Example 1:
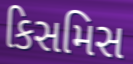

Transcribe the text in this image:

કિસમિસ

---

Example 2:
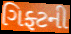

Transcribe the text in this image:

ગિફ્ટની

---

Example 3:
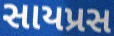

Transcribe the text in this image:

સાયપ્રસ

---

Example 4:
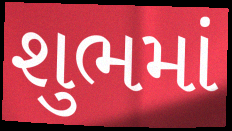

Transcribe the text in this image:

શુભમાં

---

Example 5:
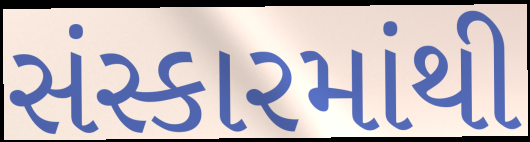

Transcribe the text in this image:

સંસ્કારમાંથી